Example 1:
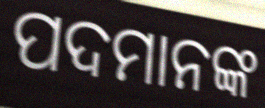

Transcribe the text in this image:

ପଦମାନଙ୍କ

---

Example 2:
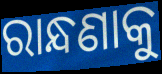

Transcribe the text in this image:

ରାନ୍ଧଣାକୁ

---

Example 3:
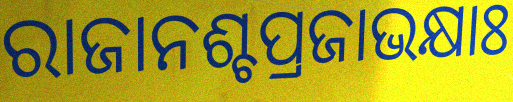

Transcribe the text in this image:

ରାଜାନଶ୍ଚପ୍ରଜାଭକ୍ଷାଃ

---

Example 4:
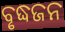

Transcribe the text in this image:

ବୃଦ୍ଧଜନ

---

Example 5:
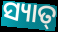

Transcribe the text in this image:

ସ୍ୟାତ୍